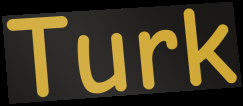
Turk